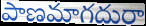
పాణమాగదురా